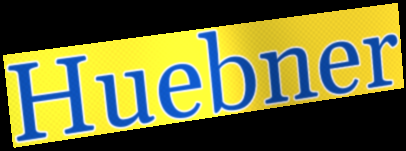
Huebner